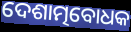
ଦେଶାତ୍ମବୋଧକ